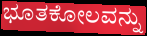
ಭೂತಕೋಲವನ್ನು